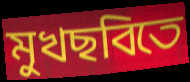
মুখছবিতে